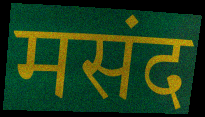
मसंद